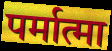
पर्मात्मा